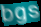
bgs